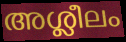
അശ്ലീലം